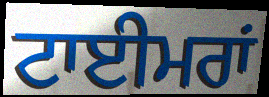
ਟਾਈਮਰਾਂ